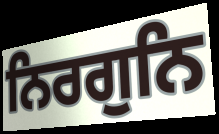
ਨਿਰਗੁਨਿ